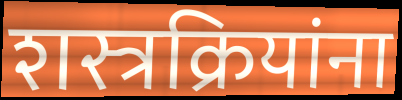
शस्त्रक्रियांना